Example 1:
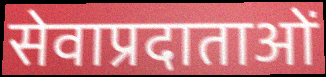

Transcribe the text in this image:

सेवाप्रदाताओं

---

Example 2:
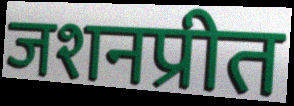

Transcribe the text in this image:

जशनप्रीत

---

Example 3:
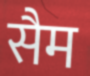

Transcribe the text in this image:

सैम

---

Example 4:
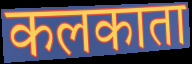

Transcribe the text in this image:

कलकाता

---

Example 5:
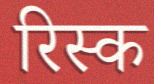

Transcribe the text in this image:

रिस्क